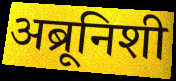
अब्रूनिशी